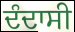
ਦੰਦਾਸੀ